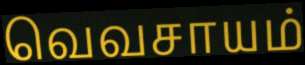
வெவசாயம்